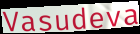
Vasudeva